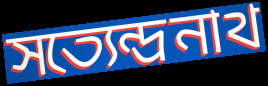
সত্যেন্দ্ৰনাথ